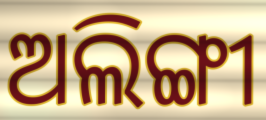
ଅଲିଙ୍ଗୀ